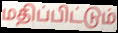
மதிப்பிட்டும்